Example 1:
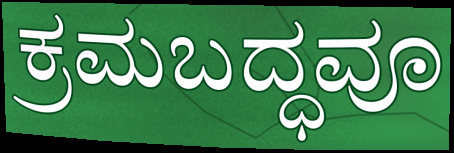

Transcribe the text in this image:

ಕ್ರಮಬದ್ಧವೂ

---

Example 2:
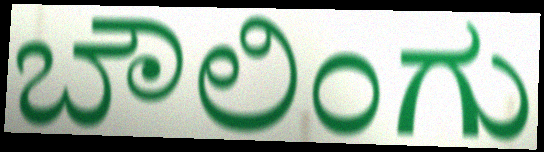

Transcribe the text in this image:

ಬೌಲಿಂಗು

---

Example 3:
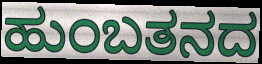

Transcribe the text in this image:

ಹುಂಬತನದ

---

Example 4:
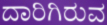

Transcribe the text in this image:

ದಾರಿಗಿರುವ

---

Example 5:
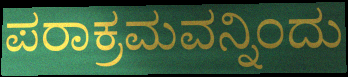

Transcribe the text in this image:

ಪರಾಕ್ರಮವನ್ನಿಂದು